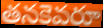
తనకెవరూ